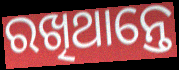
ରଖିଥାନ୍ତେ